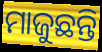
ମାଜୁଛନ୍ତି